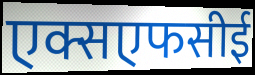
एक्सएफसीई